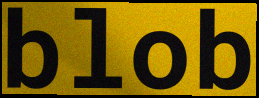
blob